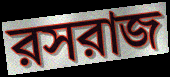
রসরাজ